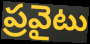
ప్రవైటు